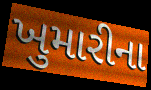
ખુમારીના